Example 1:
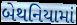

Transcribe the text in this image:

બેથનિયામાં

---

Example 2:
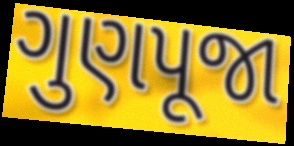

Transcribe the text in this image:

ગુણપૂજા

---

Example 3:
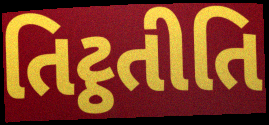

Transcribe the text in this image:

તિટ્ઠતીતિ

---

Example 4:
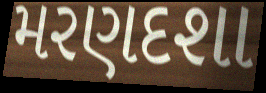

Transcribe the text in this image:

મરણદશા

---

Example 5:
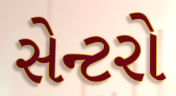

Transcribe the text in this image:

સેન્ટરો